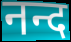
नन्द